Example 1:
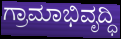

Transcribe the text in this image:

ಗ್ರಾಮಾಭಿವೃದ್ಧಿ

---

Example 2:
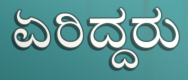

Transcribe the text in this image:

ಏರಿದ್ದರು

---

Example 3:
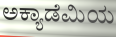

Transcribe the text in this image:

ಅಕ್ಯಾಡೆಮಿಯ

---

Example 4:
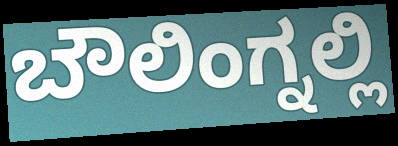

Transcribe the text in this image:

ಬೌಲಿಂಗ್ನಲ್ಲಿ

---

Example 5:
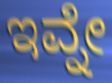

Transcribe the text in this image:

ಇವ್ನೇ